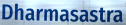
Dharmasastra